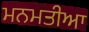
ਮਨਮਤੀਆ